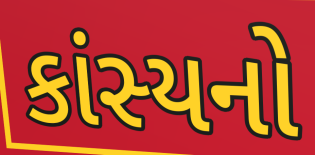
કાંસ્યનો